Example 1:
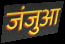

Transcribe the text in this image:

जंजुआ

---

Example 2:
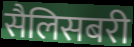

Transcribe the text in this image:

सैलिसबरी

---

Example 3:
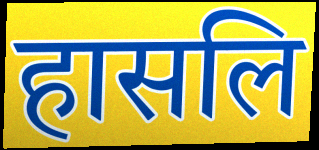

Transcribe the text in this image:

हासलि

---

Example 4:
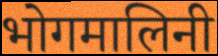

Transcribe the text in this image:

भोगमालिनी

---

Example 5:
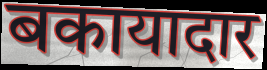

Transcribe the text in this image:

बकायादार